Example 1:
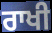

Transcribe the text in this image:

ਰਾਖੀ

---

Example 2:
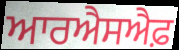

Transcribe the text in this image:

ਆਰਐਸਐਫ਼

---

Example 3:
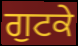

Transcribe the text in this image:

ਗੁਟਕੇ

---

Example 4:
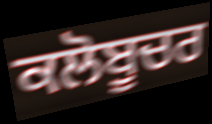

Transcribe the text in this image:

ਕਲੋਬੂਚਰ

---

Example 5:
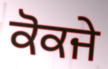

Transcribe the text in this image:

ਕੋਕਜੇ